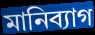
মানিব্যাগ